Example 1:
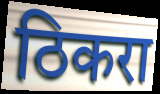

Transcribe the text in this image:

ठिकरा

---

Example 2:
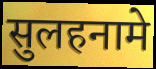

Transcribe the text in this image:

सुलहनामे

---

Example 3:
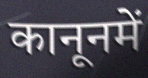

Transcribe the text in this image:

कानूनमें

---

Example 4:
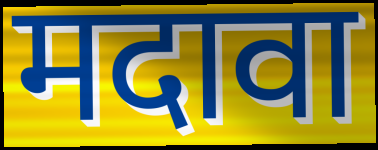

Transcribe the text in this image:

मदावा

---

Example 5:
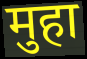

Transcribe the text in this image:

मुहा